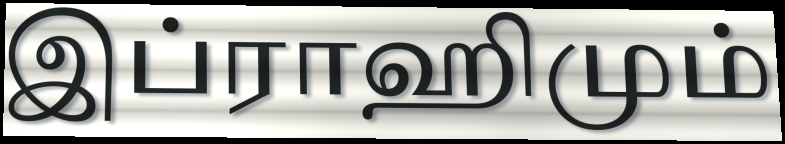
இப்ராஹிமும்